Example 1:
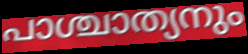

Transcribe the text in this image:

പാശ്ചാത്യനും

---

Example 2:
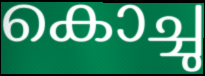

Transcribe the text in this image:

കൊച്ചു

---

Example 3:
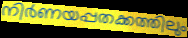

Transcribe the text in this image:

നിർണയപ്പതക്കത്തിലും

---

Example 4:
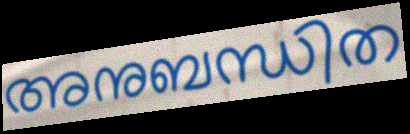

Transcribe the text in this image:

അനുബന്ധിത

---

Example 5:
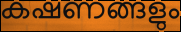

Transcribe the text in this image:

കഷണങ്ങളും